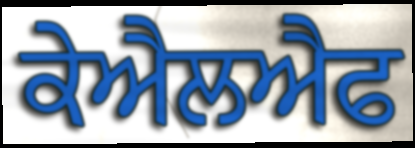
ਕੇਐਲਐਫ